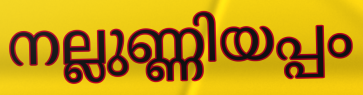
നല്ലുണ്ണിയപ്പം